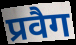
प्रवैग